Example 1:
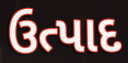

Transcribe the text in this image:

ઉત્પાદ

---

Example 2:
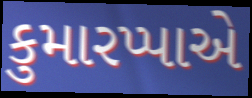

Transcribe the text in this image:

કુમારપ્પાએ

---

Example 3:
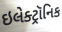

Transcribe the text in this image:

ઇલેક્ટ્રૉનિક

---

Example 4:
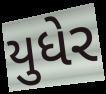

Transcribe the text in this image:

યુધેર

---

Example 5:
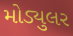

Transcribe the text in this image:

મોડ્યુલર